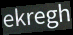
ekregh